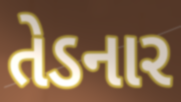
તેડનાર